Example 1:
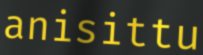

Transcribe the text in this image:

anisittu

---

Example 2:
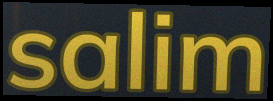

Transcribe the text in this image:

salim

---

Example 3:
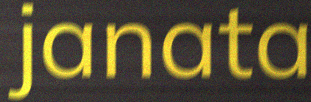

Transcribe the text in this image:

janata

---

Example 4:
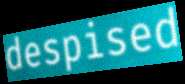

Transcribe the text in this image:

despised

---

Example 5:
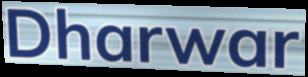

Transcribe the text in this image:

Dharwar